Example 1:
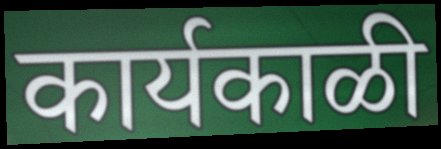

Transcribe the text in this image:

कार्यकाळी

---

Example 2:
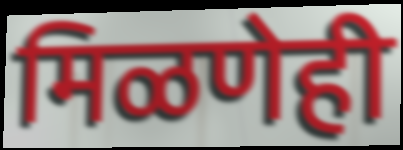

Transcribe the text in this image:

मिळणेही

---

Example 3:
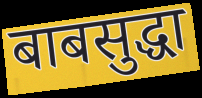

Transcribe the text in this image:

बाबसुद्धा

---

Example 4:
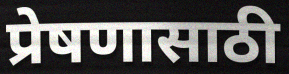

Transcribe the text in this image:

प्रेषणासाठी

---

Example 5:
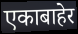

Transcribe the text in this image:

एकाबाहेर